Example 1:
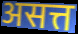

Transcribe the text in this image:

असत्त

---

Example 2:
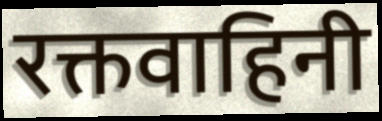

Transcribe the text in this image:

रक्तवाहिनी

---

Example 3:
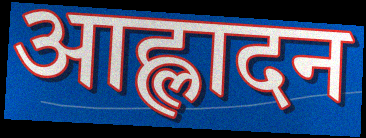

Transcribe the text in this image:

आह्लादन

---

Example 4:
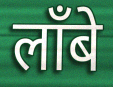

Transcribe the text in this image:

लाँबे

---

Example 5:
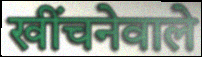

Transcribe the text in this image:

खींचनेवाले